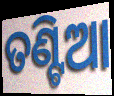
ତଣ୍ଟିଆ